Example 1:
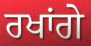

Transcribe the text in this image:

ਰਖਾਂਗੇ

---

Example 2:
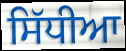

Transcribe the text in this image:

ਸਿੱਧੀਆ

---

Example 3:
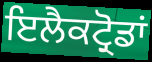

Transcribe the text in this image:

ਇਲੈਕਟ੍ਰੋਡਾਂ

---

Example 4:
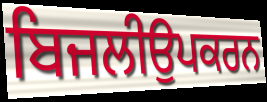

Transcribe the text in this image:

ਬਿਜਲੀਉਪਕਰਨ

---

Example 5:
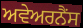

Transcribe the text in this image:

ਅਵੇਅਰਨੈਂਸ